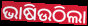
ଭାଷିଉଠିଲା